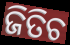
ଜିତିଚ